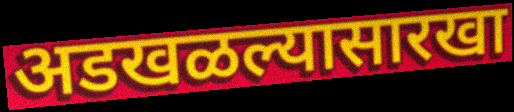
अडखळल्यासारखा